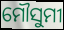
ମୌସୁମୀ